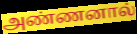
அண்ணனால்